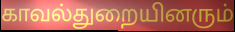
காவல்துறையினரும்